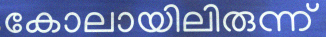
കോലായിലിരുന്ന്